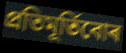
প্ৰতিমূৰ্তিবোৰ